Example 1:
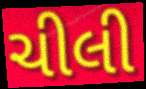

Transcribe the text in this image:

ચીલી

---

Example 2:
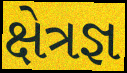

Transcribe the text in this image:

ક્ષેત્રજ્ઞ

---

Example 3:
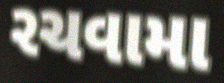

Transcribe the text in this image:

રચવામા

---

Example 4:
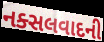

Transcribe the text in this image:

નક્સલવાદની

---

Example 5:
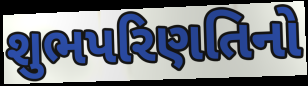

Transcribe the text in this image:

શુભપરિણતિનો